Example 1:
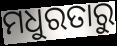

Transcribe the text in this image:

ମଧୁରତାରୁ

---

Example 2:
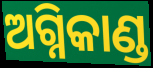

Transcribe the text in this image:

ଅଗ୍ନିକାଣ୍ଡ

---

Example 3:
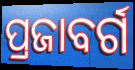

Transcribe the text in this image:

ପ୍ରଜାବର୍ଗ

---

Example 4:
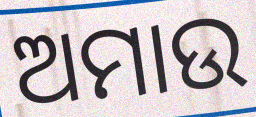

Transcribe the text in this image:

ଅମାଉ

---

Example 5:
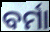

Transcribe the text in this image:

ବର୍ମା